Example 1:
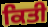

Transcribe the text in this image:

ਕਿਤੀ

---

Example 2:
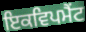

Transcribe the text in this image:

ਇਕਵਿਪਮੈਂਟ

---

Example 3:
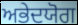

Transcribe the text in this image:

ਅਭੇਦਯੋਗ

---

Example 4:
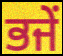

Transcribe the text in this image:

ਭਜੇਂ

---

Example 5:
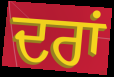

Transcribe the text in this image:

ਦਰਾਂ